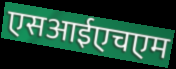
एसआईएचएम